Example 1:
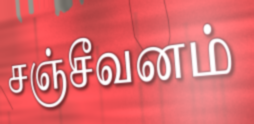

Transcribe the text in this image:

சஞ்சீவனம்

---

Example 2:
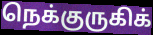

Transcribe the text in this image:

நெக்குருகிக்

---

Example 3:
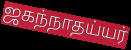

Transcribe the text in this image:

ஜகந்நாதய்யர்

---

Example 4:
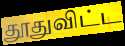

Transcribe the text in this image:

தூதுவிட்ட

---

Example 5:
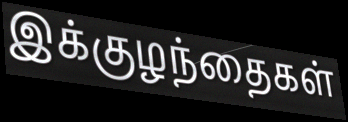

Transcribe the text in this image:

இக்குழந்தைகள்